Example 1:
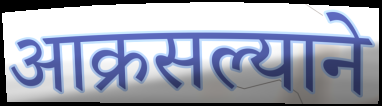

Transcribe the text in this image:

आक्रसल्याने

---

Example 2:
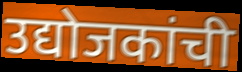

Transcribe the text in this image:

उद्योजकांची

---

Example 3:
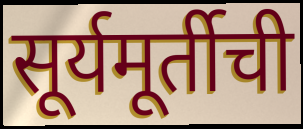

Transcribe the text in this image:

सूर्यमूर्तीची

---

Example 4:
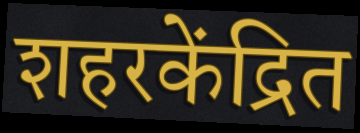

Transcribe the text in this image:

शहरकेंद्रित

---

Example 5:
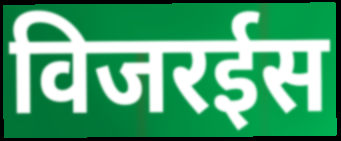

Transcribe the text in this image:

विजरईस